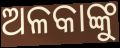
ଅଳକାଙ୍କୁ